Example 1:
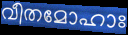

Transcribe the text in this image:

വീതമോഹാഃ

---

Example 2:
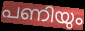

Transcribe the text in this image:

പണിയും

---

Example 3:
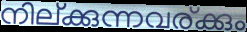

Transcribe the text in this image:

നില്ക്കുന്നവര്ക്കും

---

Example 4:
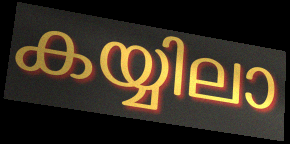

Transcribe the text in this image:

കയ്യിലാ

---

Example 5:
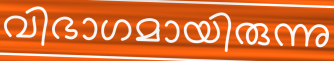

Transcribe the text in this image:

വിഭാഗമായിരുന്നു